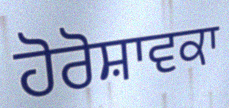
ਹੋਰੋਸ਼ਾਵਕਾ